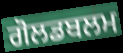
ਗੋਲਡਬਲਮ